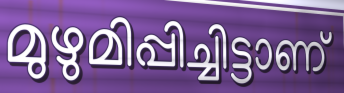
മുഴുമിപ്പിച്ചിട്ടാണ്